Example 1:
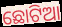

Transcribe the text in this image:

ଛୋଟିଆ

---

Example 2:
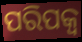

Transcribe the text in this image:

ପରିପକ୍ବ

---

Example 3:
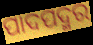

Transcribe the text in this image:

ପାଦପଦ୍ମର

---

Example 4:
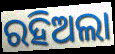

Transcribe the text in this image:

ରହିଅଲା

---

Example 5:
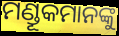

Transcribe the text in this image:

ମଣ୍ଡୂକମାନଙ୍କୁ